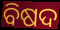
ବିଷଦ